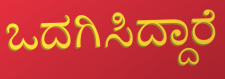
ಒದಗಿಸಿದ್ದಾರೆ